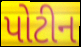
પોટીન